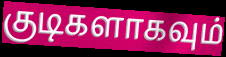
குடிகளாகவும்